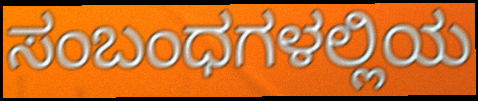
ಸಂಬಂಧಗಳಲ್ಲಿಯ